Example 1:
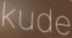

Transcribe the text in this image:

kude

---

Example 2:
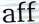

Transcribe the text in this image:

aff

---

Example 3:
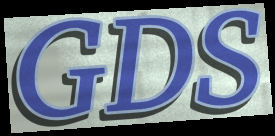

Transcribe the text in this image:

GDS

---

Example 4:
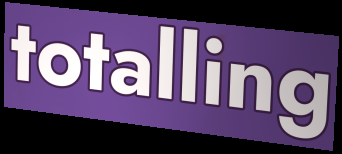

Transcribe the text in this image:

totalling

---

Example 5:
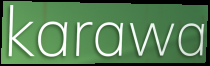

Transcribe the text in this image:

karawa